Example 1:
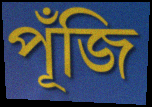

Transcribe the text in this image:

পূঁজি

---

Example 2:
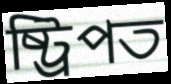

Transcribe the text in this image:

ষ্ট্ৰিপত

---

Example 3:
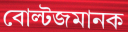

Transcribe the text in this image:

বোল্টজমানক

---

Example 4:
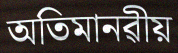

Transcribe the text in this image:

অতিমানৱীয়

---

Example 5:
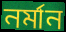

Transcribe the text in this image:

নৰ্মান